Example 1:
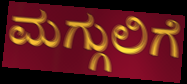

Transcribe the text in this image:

ಮಗ್ಗುಲಿಗೆ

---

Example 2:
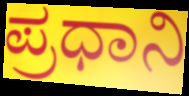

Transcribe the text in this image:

ಪ್ರಧಾನಿ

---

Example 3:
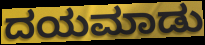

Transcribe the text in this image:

ದಯಮಾಡು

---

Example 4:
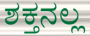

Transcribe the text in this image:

ಶಕ್ತನಲ್ಲ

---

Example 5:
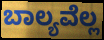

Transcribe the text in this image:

ಬಾಲ್ಯವೆಲ್ಲ